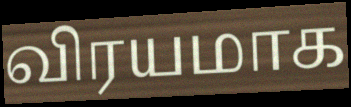
விரயமாக